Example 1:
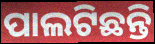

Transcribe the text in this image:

ପାଲଟିଛନ୍ତି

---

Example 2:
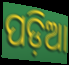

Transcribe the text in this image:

ପଡ଼ିଆ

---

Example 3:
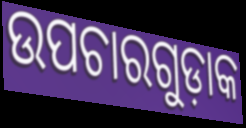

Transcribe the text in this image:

ଉପଚାରଗୁଡ଼ାକ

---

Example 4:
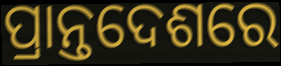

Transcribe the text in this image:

ପ୍ରାନ୍ତଦେଶରେ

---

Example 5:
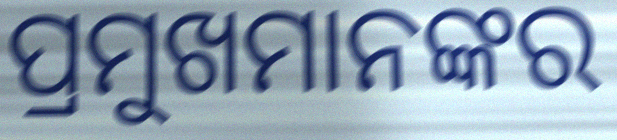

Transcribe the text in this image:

ପ୍ରମୁଖମାନଙ୍କର